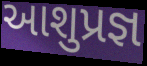
આશુપ્રજ્ઞ